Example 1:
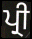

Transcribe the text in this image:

ਪ੍ਰੀ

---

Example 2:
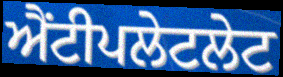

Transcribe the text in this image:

ਐਂਟੀਪਲੇਟਲੇਟ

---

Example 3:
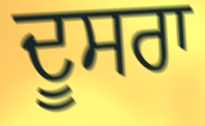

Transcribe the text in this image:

ਦੂਸਰਾ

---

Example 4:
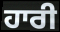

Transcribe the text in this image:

ਹਾਰੀ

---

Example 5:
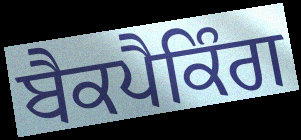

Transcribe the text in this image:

ਬੈਕਪੈਕਿੰਗ